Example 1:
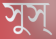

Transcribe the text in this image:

সুস্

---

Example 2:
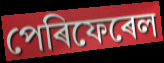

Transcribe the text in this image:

পেৰিফেৰেল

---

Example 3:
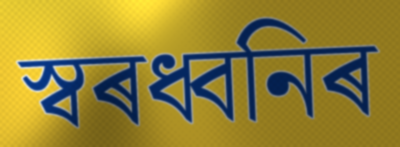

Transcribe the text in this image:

স্বৰধ্বনিৰ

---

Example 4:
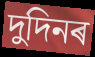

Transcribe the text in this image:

দুদিনৰ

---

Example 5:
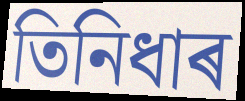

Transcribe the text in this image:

তিনিধাৰ